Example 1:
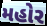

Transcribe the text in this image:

મહોર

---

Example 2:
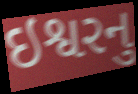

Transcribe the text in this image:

ઇશ્વરનુ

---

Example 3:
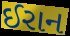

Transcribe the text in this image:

ઈરાન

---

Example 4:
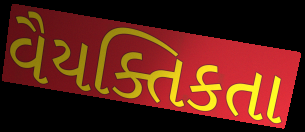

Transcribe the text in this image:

વૈયક્તિકતા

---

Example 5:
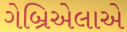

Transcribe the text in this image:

ગેબ્રિએલાએ